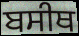
ਬਸੀਥ